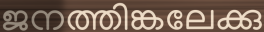
ജനത്തിങ്കലേക്കു